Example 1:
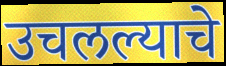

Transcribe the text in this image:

उचलल्याचे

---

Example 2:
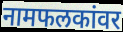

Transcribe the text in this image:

नामफलकांवर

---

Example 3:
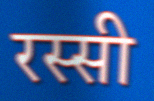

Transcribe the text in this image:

रस्सी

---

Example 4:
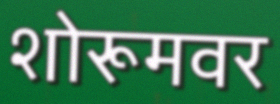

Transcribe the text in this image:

शोरूमवर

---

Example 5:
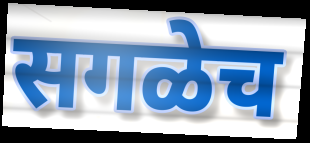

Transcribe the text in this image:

सगळेच